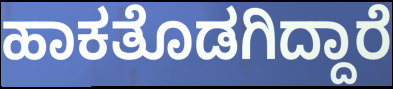
ಹಾಕತೊಡಗಿದ್ದಾರೆ